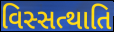
વિસ્સત્થાતિ